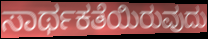
ಸಾರ್ಥಕತೆಯಿರುವುದು